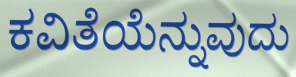
ಕವಿತೆಯೆನ್ನುವುದು